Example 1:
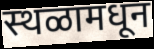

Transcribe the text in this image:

स्थळामधून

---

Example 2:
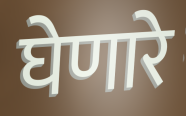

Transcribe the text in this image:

घेणारे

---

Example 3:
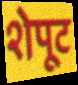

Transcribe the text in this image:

शेपूट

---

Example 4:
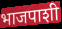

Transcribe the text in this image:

भाजपाशी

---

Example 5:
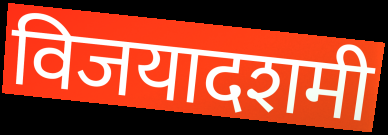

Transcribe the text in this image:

विजयादशमी